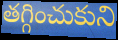
తగ్గించుకుని